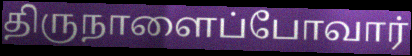
திருநாளைப்போவார்